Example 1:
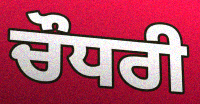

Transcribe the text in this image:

ਚੌਧਰੀ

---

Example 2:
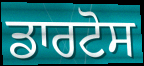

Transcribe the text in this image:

ਡਾਰਟੋਸ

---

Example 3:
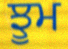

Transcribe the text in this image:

ਝੂਮ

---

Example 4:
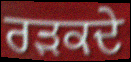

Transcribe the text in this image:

ਰੜਕਦੇ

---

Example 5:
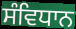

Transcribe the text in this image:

ਸੰਵਿਧਾਨ